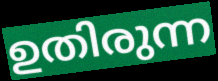
ഉതിരുന്ന